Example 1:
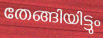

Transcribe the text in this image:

തേങ്ങിയിട്ടും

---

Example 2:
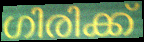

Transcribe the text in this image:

ഗിരിക്ക്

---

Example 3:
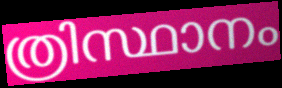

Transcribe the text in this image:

ത്രിസ്ഥാനം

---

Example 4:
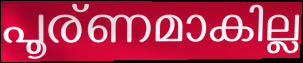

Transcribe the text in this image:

പൂര്ണമാകില്ല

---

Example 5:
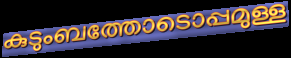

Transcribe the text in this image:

കുടുംബത്തോടൊപ്പമുള്ള